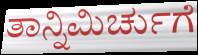
ತಾನ್ನಿಮಿರ್ಚುಗೆ